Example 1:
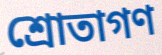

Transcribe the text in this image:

শ্রোতাগণ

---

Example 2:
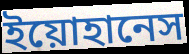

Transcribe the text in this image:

ইয়োহানেস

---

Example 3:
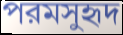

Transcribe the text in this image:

পরমসুহৃদ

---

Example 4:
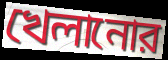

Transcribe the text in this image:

খেলানোর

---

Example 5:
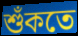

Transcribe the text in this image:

শুঁকতে